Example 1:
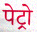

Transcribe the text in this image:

पेट्रो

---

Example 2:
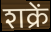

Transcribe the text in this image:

शक्रें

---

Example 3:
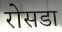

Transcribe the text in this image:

रोसडा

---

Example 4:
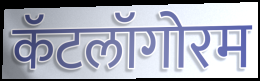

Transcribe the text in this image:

कॅटलॉगोरम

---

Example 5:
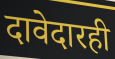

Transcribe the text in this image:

दावेदारही